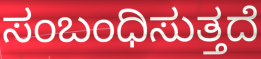
ಸಂಬಂಧಿಸುತ್ತದೆ